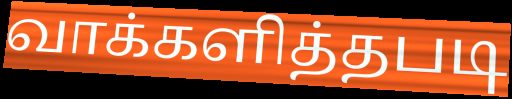
வாக்களித்தபடி